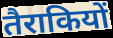
तैराकियों